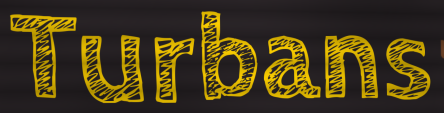
Turbans